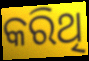
କରିଥି